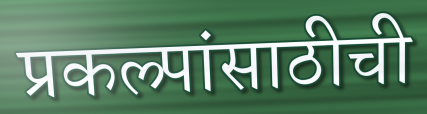
प्रकल्पांसाठीची